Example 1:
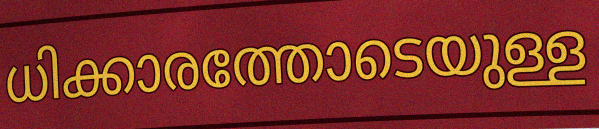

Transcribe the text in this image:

ധിക്കാരത്തോടെയുള്ള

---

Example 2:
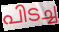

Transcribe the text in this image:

പിടച്ച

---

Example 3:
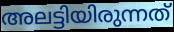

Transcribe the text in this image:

അലട്ടിയിരുന്നത്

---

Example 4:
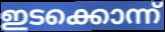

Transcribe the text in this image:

ഇടക്കൊന്ന്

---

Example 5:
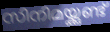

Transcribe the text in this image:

സിനിമയ്ക്കുണ്ട്